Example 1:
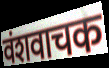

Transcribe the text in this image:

वंशवाचक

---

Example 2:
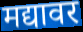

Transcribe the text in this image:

मद्यावर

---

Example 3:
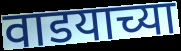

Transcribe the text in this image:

वाडयाच्या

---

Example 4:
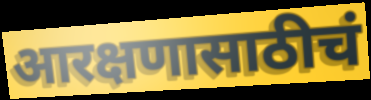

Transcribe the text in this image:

आरक्षणासाठीचं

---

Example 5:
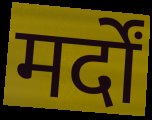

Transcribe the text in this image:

मर्दों